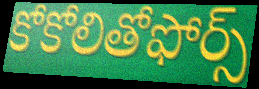
కోకోలితోఫోర్స్